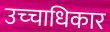
उच्‍चाधिकार